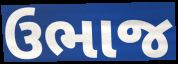
ઉભાજ